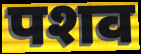
पशव